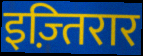
इज़्तिरार